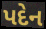
પદેન